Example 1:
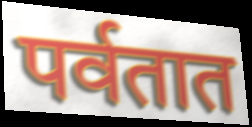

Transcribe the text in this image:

पर्वतात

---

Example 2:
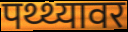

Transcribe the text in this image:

पथ्थ्यावर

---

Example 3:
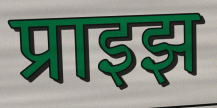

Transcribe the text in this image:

प्राइझ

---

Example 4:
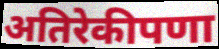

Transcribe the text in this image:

अतिरेकीपणा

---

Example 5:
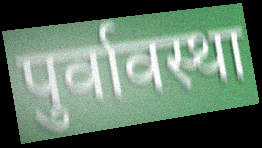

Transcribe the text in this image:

पुर्वावस्था